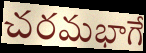
చరమభాగే